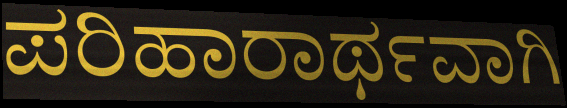
ಪರಿಹಾರಾರ್ಥವಾಗಿ